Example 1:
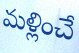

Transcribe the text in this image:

మళ్లించే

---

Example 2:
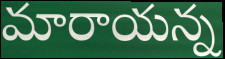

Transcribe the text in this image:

మారాయన్న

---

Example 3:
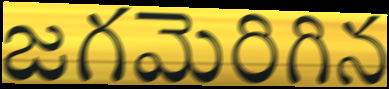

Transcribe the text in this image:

జగమెరిగిన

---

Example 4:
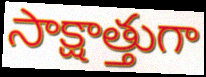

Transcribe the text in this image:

సాక్షాత్తుగా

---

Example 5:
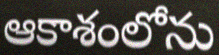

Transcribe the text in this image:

ఆకాశంలోను